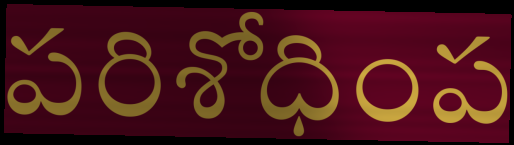
పరిశోధింప